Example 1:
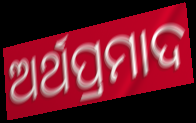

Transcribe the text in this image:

ଅର୍ଥପ୍ରମାଦ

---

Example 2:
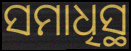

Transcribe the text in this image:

ସମାଧିସ୍ଥ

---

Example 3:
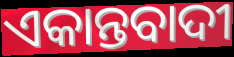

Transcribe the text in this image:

ଏକାନ୍ତବାଦୀ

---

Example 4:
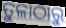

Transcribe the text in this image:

ତୁଳାଠାରୁ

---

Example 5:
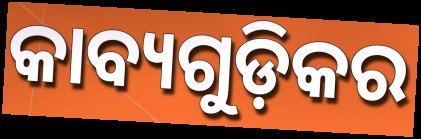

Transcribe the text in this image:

କାବ୍ୟଗୁଡ଼ିକର